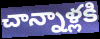
చాన్నాళ్లకి